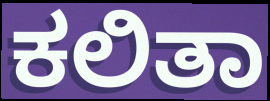
ಕಲಿತಾ